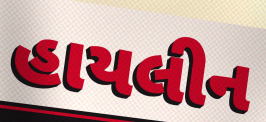
હાયલીન